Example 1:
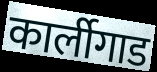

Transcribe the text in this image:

कार्लीगाड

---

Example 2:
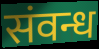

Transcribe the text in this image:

संवन्ध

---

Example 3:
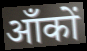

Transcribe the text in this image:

आँकों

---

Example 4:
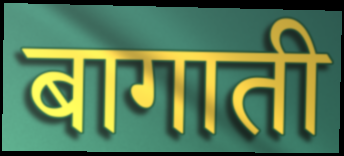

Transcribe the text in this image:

बागाती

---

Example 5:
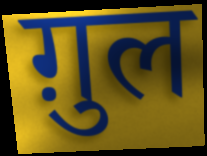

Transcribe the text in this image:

ग़ुल